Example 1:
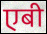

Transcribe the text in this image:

एबी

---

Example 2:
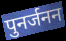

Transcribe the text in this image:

पुनर्जनन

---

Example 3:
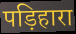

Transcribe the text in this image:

पड़िहारा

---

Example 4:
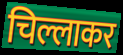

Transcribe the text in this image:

चिल्लाकर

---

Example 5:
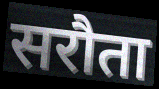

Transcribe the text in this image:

सरौता